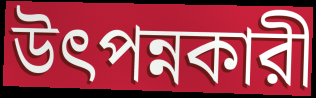
উৎপন্নকারী